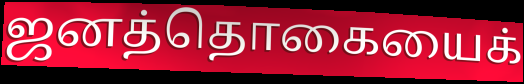
ஜனத்தொகையைக்